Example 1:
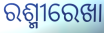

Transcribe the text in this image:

ରଶ୍ମୀରେଖା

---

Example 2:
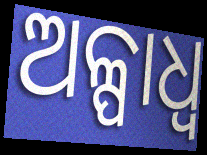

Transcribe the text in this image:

ଅଳ୍ପାଧ୍ଵ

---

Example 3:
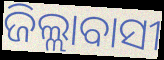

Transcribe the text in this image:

ଜିଲ୍ଲାବାସୀ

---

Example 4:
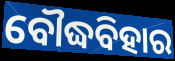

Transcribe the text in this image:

ବୌଦ୍ଧବିହାର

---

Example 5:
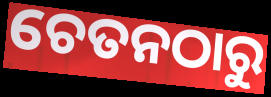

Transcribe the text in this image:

ଚେତନଠାରୁ